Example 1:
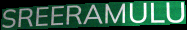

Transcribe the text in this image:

SREERAMULU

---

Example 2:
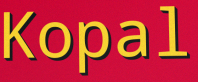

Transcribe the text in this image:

Kopal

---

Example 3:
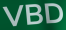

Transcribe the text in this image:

VBD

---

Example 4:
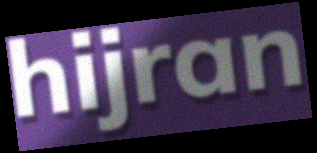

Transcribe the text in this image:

hijran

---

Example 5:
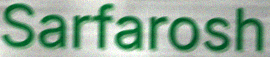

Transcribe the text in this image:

Sarfarosh